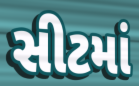
સીટમાં